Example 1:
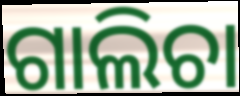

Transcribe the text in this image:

ଗାଲିଚା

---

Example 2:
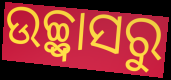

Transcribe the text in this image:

ଉଚ୍ଛ୍ୱାସରୁ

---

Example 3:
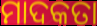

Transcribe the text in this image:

ମାଦକତା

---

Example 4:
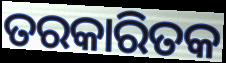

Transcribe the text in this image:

ତରକାରିତକ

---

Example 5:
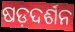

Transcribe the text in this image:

ଷଡ଼ଦର୍ଶନ